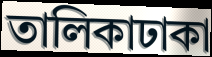
তালিকাঢাকা